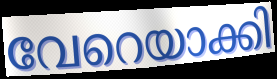
വേറെയാക്കി